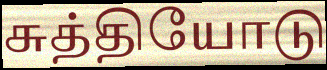
சுத்தியோடு